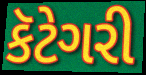
કૅટેગરી